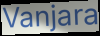
Vanjara